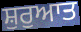
ਸ਼ੁਰੁਆਤ